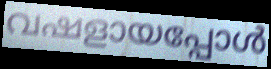
വഷളായപ്പോൾ